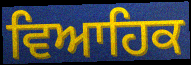
ਵਿਆਹਿਕ